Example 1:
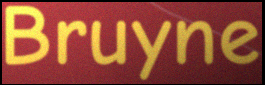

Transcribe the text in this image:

Bruyne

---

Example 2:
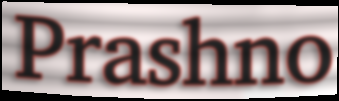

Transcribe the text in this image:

Prashno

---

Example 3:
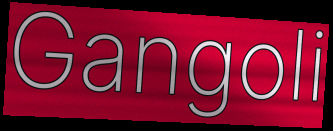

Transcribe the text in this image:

Gangoli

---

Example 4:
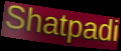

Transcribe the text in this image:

Shatpadi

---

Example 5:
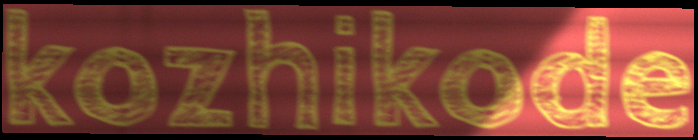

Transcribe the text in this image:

kozhikode